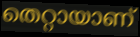
തെറ്റായാണ്